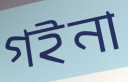
গইনা